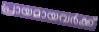
പ്രായമായവർക്ക്